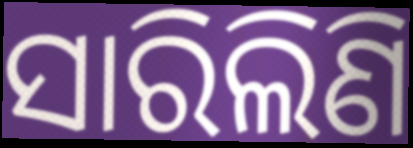
ସାରିଲିଣି